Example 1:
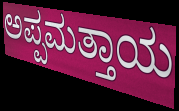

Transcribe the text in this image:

ಅಪ್ಪಮತ್ತಾಯ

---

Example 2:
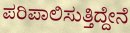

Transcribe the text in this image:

ಪರಿಪಾಲಿಸುತ್ತಿದ್ದೇನೆ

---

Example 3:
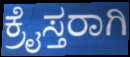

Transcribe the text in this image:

ಕ್ರೈಸ್ತರಾಗಿ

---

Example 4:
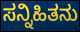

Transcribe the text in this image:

ಸನ್ನಿಹಿತನು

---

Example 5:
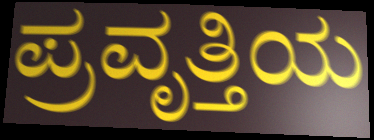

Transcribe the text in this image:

ಪ್ರವೃತ್ತಿಯ